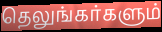
தெலுங்கர்களும்